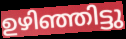
ഉഴിഞ്ഞിട്ടു